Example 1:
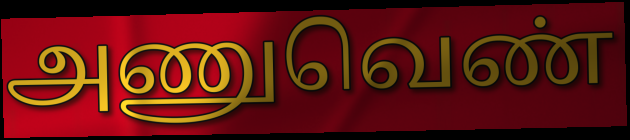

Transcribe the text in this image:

அணுவெண்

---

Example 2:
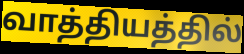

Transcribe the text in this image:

வாத்தியத்தில்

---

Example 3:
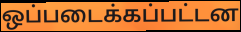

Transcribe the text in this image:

ஒப்படைக்கப்பட்டன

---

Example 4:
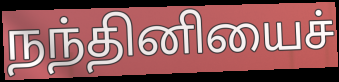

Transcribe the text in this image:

நந்தினியைச்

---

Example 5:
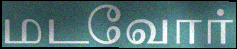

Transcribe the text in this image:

மடவோர்